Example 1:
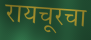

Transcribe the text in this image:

रायचूरचा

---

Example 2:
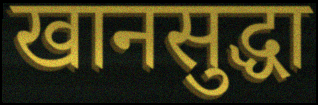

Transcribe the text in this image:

खानसुद्धा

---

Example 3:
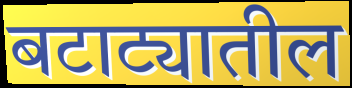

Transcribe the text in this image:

बटाट्यातील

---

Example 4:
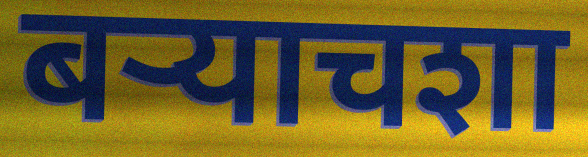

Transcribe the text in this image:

बर्‍याचशा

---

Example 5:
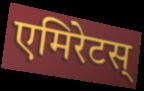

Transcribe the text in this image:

एमिरेटस्